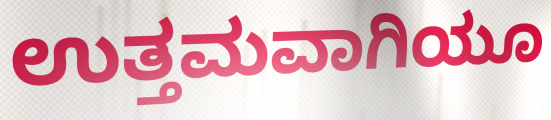
ಉತ್ತಮವಾಗಿಯೂ